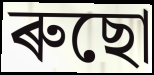
ৰুছো